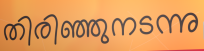
തിരിഞ്ഞുനടന്നു